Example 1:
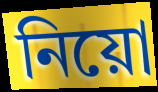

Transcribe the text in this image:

নিয়ো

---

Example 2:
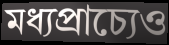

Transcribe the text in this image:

মধ্যপ্রাচ্যেও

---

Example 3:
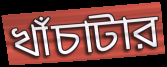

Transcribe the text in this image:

খাঁচাটার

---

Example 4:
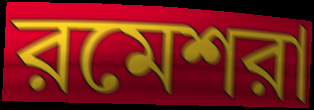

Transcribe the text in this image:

রমেশরা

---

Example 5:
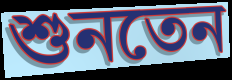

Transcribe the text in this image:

শুনতেন